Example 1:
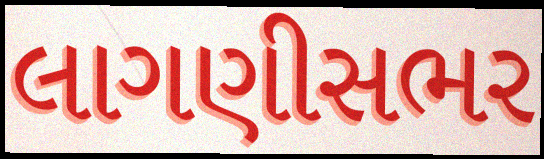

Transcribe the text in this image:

લાગણીસભર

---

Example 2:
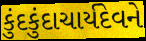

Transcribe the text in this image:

કુંદકુંદાચાર્યદેવને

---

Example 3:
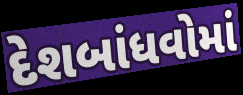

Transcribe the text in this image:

દેશબાંધવોમાં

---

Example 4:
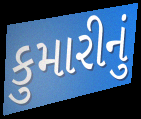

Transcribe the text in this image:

કુમારીનું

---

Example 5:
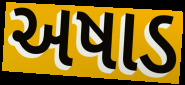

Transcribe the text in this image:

અષાડ